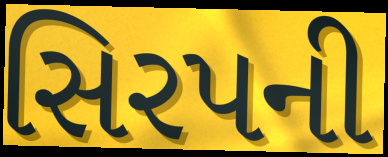
સિરપની